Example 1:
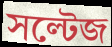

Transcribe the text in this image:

সল্টেজ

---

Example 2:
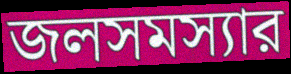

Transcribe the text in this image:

জলসমস্যার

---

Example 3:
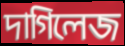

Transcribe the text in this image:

দাগিলেজ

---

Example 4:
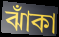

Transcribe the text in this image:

ঝাঁকা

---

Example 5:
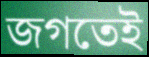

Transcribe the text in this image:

জগতেই